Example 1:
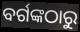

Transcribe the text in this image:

ବର୍ଗଙ୍କଠାରୁ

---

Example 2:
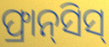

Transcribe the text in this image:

ଫ୍ରାନ୍‌ସିସ୍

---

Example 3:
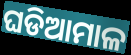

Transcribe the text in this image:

ଘଡିଆମାଳ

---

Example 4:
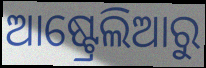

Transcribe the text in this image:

ଆଷ୍ଟ୍ରେଲିଆରୁ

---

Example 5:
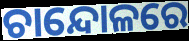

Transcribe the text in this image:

ଚାନ୍ଦୋଳରେ